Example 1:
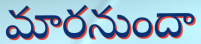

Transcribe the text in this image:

మారనుందా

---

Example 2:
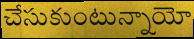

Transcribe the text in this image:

చేసుకుంటున్నాయో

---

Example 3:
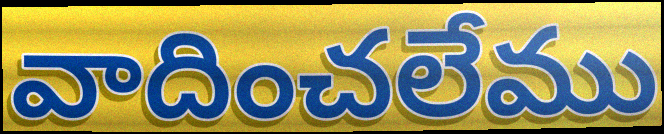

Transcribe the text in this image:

వాదించలేము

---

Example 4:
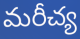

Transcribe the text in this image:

మరీచ్య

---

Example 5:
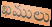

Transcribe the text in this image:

ఖములు